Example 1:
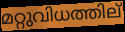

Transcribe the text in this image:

മറ്റുവിധത്തില്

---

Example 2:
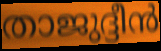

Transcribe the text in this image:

താജുദ്ദീൻ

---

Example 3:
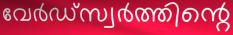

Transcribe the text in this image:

വേർഡ്സ്വർത്തിന്റെ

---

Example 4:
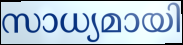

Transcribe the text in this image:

സാധ്യമായി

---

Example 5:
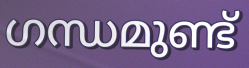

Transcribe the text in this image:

ഗന്ധമുണ്ട്